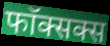
फॉक्सक्स